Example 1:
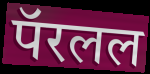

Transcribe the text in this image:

पॅरलल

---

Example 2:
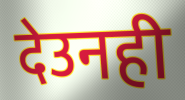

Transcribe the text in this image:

देउनही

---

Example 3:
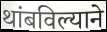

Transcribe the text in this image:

थांबविल्याने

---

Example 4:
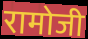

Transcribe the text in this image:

रामोजी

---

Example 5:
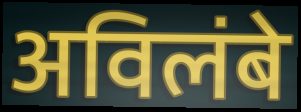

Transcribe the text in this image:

अविलंबे